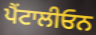
ਪੈਂਟਾਲੀਓਨ